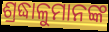
ଶ୍ରଦ୍ଧାଳୁମାନଙ୍କ